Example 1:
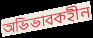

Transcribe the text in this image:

অভিভাবকহীন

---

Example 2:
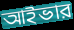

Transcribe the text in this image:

আইভার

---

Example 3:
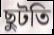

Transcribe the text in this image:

ছুটতি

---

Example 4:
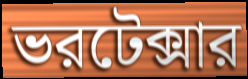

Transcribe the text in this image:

ভরটেক্সার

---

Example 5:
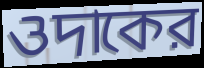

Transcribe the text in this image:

ওদাকের